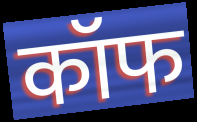
कॉफ